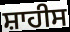
ਸ਼ਾਹੀਸ